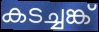
കടച്ചങ്ക്